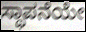
ಸ್ಥಾಪನೆಯೇ